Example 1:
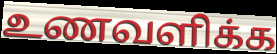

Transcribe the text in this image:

உணவளிக்க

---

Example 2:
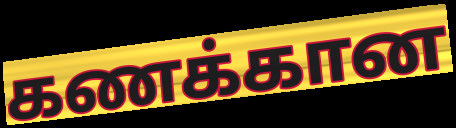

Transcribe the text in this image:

கணக்கான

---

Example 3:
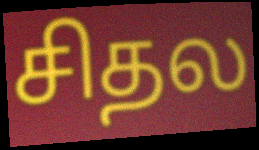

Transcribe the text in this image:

சிதல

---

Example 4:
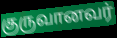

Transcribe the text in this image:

குருவானவர்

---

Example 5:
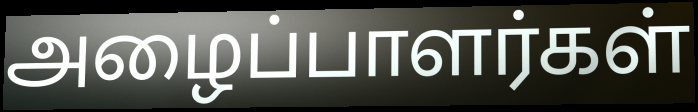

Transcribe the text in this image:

அழைப்பாளர்கள்